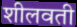
शीलवती